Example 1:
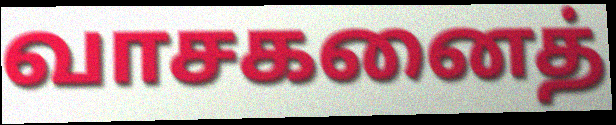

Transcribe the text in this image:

வாசகனைத்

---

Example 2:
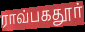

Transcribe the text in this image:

ராவ்பகதூர்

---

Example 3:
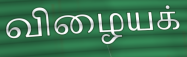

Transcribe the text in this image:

விழையக்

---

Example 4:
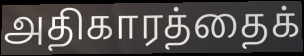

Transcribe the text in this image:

அதிகாரத்தைக்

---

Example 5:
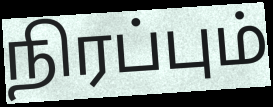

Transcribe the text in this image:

நிரப்பும்